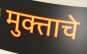
मुक्ताचे